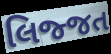
લિજ્જત